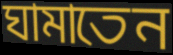
ঘামাতেন